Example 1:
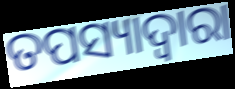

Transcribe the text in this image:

ତପସ୍ୟାଦ୍ୱାରା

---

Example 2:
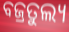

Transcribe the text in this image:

ବଜ୍ରତୁଲ୍ୟ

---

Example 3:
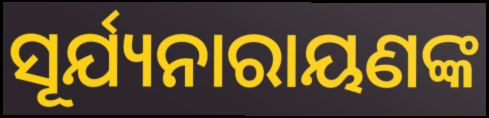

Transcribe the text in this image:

ସୂର୍ଯ୍ୟନାରାୟଣଙ୍କ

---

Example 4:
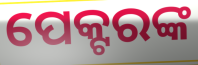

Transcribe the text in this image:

ପେକ୍ଟରଙ୍କ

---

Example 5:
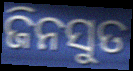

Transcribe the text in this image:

ଜିନସୁତ